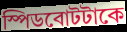
স্পিডবোটটাকে